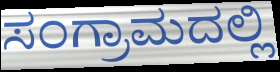
ಸಂಗ್ರಾಮದಲ್ಲಿ